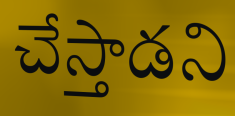
చేస్తాడని